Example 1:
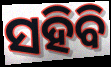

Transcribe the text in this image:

ସହିବି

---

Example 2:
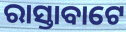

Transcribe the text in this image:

ରାସ୍ତାବାଟେ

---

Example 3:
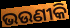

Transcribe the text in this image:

ଭଉଣୀକି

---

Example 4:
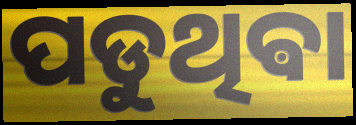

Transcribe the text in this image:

ପଡୁଥିଵା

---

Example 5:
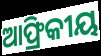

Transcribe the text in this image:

ଆଫ୍ରିକୀୟ